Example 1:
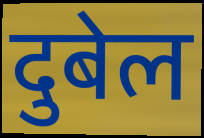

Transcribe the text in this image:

दुबेल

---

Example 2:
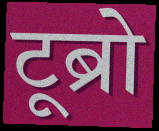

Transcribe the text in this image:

टूब्रो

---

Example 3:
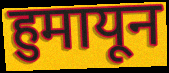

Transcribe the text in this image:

हुमायून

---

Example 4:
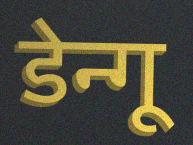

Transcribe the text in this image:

डेन्गू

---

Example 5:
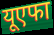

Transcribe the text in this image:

यूएफा